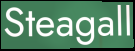
Steagall